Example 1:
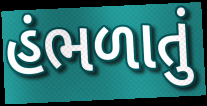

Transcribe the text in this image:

હંભળાતું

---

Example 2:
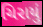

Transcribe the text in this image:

ચિરાયું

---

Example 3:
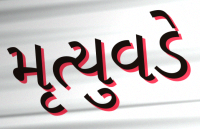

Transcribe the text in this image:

મૃત્યુવડે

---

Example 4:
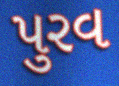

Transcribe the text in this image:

પુરવ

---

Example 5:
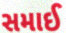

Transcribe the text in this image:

સમાઈ